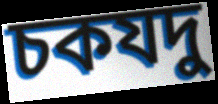
চকযদু